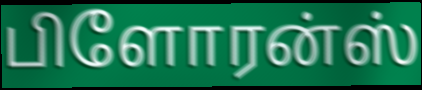
பிளோரன்ஸ்